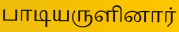
பாடியருளினார்